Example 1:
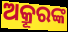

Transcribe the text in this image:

ଅକ୍ରୂରଙ୍କ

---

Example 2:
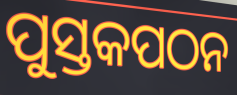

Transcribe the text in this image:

ପୁସ୍ତକପଠନ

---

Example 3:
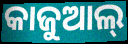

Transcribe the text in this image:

କାଜୁଆଲ୍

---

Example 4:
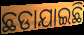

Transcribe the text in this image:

ଛଡାଯାଇଛି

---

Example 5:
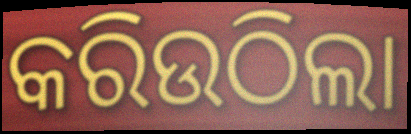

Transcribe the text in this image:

କରିଉଠିଲା